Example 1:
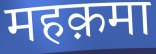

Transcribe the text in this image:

महक़मा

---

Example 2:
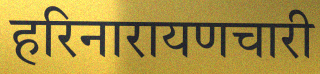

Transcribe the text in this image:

हरिनारायणचारी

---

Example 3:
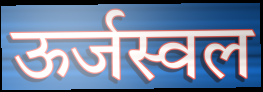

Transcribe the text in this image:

ऊर्जस्वल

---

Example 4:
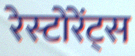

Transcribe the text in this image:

रेस्‍टोरेंट्स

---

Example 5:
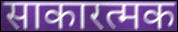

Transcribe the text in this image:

साकारत्मक